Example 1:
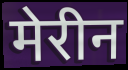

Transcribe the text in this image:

मेरीन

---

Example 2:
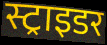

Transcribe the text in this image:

स्ट्राइडर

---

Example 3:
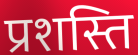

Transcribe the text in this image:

प्रशस्ति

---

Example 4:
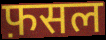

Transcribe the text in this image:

फ़सल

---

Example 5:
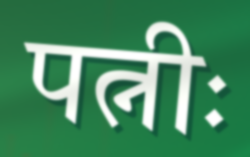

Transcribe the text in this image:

पत्नीः